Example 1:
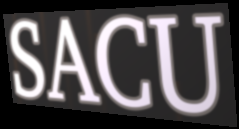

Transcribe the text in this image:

SACU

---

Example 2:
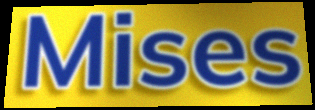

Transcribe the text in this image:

Mises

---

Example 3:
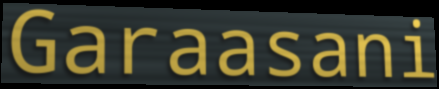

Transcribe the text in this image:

Garaasani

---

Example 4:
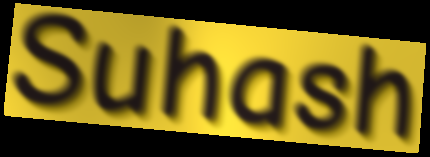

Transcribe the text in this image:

Suhash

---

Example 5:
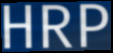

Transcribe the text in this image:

HRP